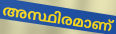
അസ്ഥിരമാണ്